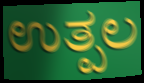
ಉತ್ಪಲ